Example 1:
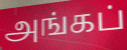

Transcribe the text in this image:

அங்கப்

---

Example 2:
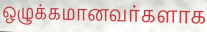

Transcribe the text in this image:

ஒழுக்கமானவர்களாக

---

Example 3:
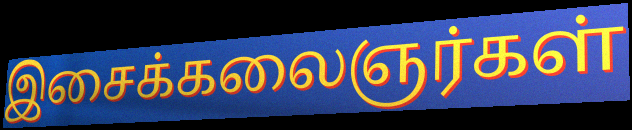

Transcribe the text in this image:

இசைக்கலைஞர்கள்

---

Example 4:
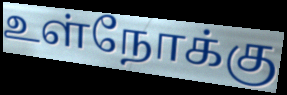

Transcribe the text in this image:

உள்நோக்கு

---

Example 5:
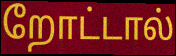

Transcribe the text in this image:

றோட்டால்